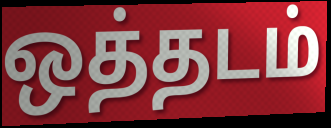
ஒத்தடம்